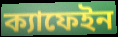
ক্যাফেইন